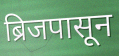
ब्रिजपासून